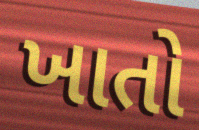
ખાતો